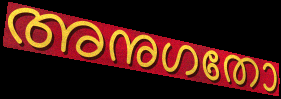
അനുഗതോ